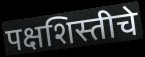
पक्षशिस्तीचे